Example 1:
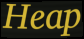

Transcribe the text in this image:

Heap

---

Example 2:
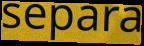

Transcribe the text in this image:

separa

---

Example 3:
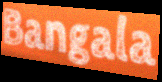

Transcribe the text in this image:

Bangala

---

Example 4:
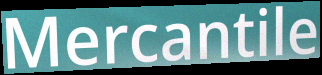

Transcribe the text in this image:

Mercantile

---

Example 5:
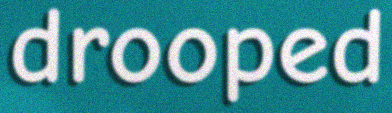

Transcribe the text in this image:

drooped